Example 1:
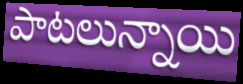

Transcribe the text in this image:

పాటలున్నాయి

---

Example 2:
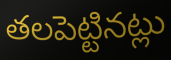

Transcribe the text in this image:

తలపెట్టినట్లు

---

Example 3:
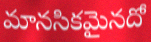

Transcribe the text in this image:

మానసికమైనదో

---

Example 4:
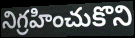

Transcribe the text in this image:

నిగ్రహించుకొని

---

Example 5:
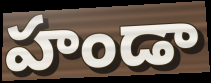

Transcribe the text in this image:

హండా